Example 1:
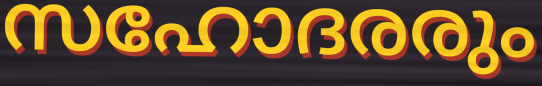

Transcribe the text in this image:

സഹോദരരും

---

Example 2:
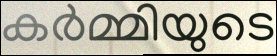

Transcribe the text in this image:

കർമ്മിയുടെ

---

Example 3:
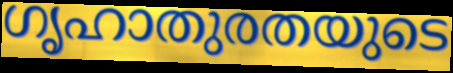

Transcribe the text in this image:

ഗൃഹാതുരതയുടെ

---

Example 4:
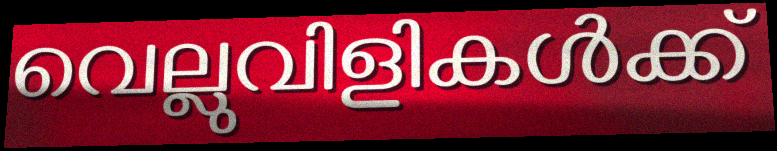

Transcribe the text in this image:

വെല്ലുവിളികൾക്ക്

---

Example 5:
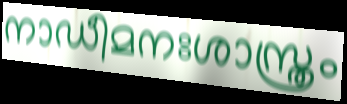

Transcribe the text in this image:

നാഡീമനഃശാസ്ത്രം